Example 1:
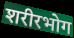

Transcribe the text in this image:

शरीरभोग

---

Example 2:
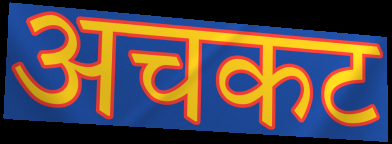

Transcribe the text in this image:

अचकट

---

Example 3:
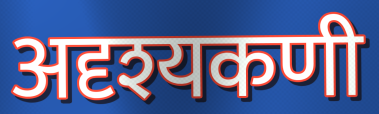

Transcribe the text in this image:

अदृश्यकणी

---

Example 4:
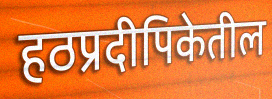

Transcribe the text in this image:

हठप्रदीपिकेतील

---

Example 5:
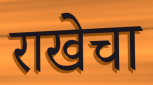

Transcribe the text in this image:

राखेचा